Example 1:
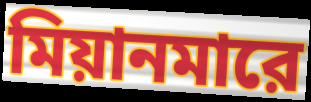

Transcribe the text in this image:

মিয়ানমারে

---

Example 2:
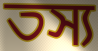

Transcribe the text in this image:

তস্য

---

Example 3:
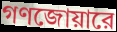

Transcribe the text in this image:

গণজোয়ারে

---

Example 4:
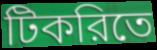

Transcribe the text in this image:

টিকরিতে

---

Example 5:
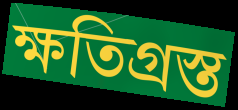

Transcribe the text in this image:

ক্ষতিগ্রস্ত